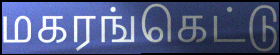
மகரங்கெட்டு